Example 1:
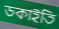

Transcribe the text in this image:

ডকাইতি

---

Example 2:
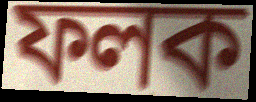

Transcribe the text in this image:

ফলক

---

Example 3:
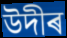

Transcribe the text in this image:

উদীৰ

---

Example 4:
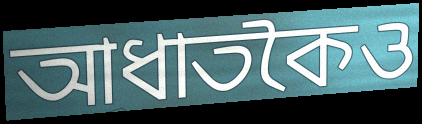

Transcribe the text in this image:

আধাতকৈও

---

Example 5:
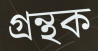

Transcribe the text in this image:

গ্ৰন্থক